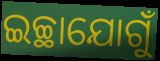
ଇଚ୍ଛାଯୋଗୁଁ